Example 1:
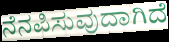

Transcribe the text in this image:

ನೆನಪಿಸುವುದಾಗಿದೆ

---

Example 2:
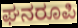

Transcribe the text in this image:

ಘನರೂಪಿ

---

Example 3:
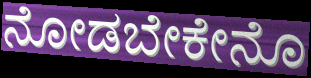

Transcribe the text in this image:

ನೋಡಬೇಕೇನೊ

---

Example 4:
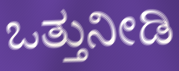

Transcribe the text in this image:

ಒತ್ತುನೀಡಿ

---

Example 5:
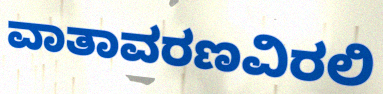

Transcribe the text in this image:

ವಾತಾವರಣವಿರಲಿ